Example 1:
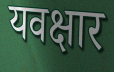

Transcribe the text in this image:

यवक्षार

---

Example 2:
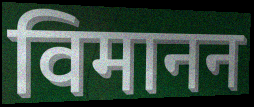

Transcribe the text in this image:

विमानन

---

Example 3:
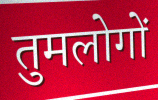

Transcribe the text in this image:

तुमलोगों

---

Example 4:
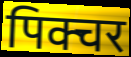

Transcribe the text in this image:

पिक्चर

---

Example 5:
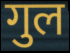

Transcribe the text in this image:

गुल